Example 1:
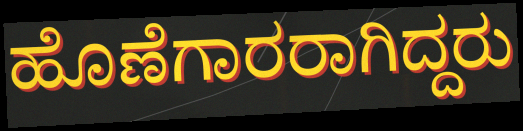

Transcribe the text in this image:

ಹೊಣೆಗಾರರಾಗಿದ್ದರು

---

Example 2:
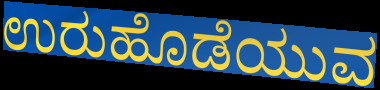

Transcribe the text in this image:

ಉರುಹೊಡೆಯುವ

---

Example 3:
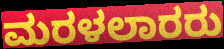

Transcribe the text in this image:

ಮರಳಲಾರರು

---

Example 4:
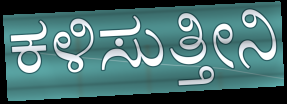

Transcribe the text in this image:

ಕಳಿಸುತ್ತೀನಿ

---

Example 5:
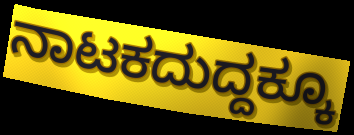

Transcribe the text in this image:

ನಾಟಕದುದ್ದಕ್ಕೂ